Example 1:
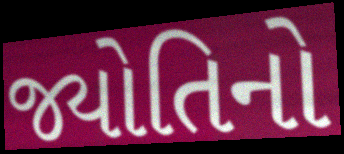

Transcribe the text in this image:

જ્યોતિનો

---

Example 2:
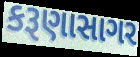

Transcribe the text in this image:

કરૂણાસાગર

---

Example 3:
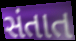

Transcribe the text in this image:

સંતાત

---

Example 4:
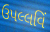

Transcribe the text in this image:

ઉપલ્લવિં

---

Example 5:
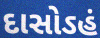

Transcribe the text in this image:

દાસોઽહં